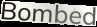
Bombed